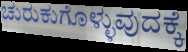
ಚುರುಕುಗೊಳ್ಳುವುದಕ್ಕೆ